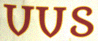
uus